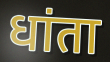
धांता